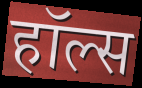
हॉल्स